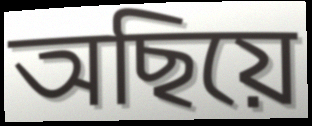
অছিয়ে